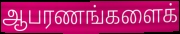
ஆபரணங்களைக்